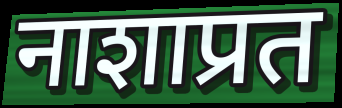
नाशाप्रत